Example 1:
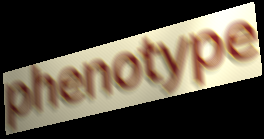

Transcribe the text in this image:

phenotype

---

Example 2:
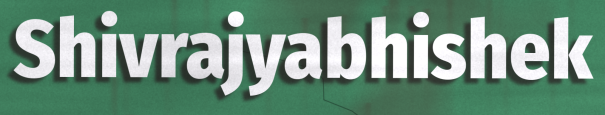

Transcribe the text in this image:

Shivrajyabhishek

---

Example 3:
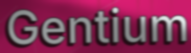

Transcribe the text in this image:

Gentium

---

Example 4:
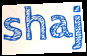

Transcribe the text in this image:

shaj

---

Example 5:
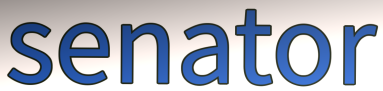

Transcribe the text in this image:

senator